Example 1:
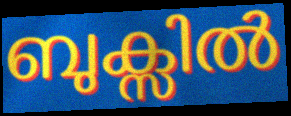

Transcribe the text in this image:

ബുക്സിൽ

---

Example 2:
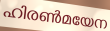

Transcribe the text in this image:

ഹിരൺമയേന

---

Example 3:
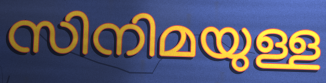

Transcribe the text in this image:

സിനിമയുള്ള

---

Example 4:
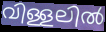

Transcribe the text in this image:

വിള്ളലിൽ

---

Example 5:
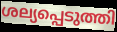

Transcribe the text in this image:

ശല്യപ്പെടുത്തി